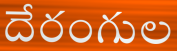
దేరంగుల